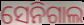
ସେନିଗାଲ